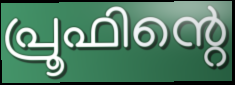
പ്രൂഫിന്റെ